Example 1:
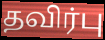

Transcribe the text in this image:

தவிர்பு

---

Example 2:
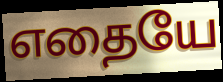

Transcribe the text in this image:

எதையே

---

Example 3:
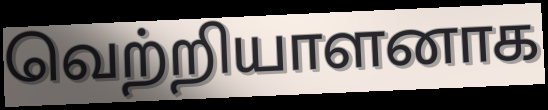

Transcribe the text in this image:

வெற்றியாளனாக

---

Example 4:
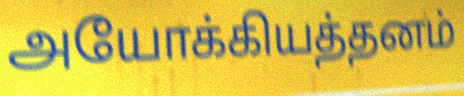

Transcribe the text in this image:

அயோக்கியத்தனம்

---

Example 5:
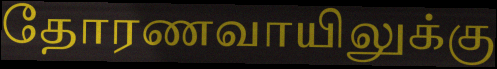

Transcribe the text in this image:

தோரணவாயிலுக்கு